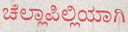
ಚೆಲ್ಲಾಪಿಲ್ಲಿಯಾಗಿ